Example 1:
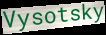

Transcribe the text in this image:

Vysotsky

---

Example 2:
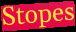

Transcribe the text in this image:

Stopes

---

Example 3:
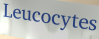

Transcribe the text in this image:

Leucocytes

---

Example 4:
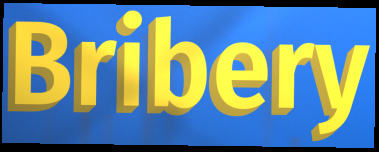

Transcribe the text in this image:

Bribery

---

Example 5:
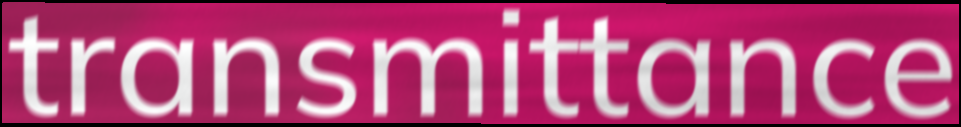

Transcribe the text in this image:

transmittance